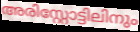
അരിസ്റ്റോട്ടിലിനും